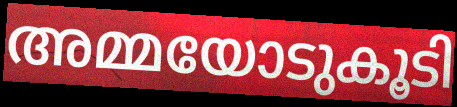
അമ്മയോടുകൂടി